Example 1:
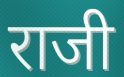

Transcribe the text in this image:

राजी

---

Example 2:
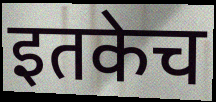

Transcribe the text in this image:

इतकेच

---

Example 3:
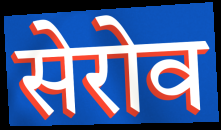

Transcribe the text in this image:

सेरोव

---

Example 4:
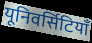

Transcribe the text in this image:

यूनिवर्सिटियाँ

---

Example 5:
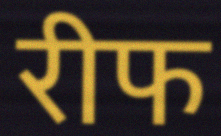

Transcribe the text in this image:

रीफ